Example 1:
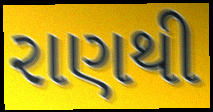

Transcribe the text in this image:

રાણથી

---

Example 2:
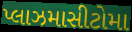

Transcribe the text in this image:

પ્લાઝમાસીટોમા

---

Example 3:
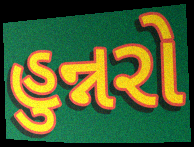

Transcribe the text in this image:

હુન્નરો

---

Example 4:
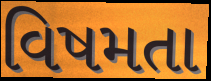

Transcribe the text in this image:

વિષમતા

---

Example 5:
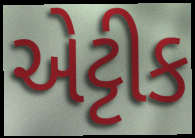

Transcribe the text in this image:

એટ્ટીક